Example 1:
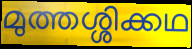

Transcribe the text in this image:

മുത്തശ്ശിക്കഥ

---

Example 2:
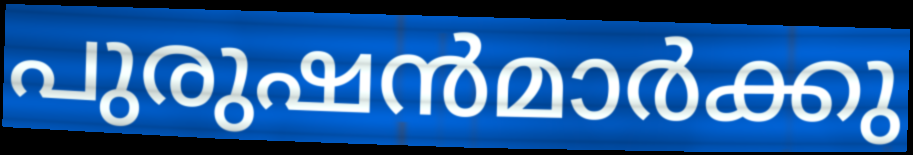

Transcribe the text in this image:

പുരുഷൻമാർക്കു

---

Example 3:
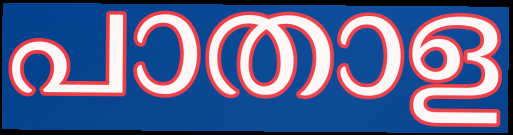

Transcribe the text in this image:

പാതാള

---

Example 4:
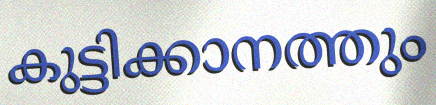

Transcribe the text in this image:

കുട്ടിക്കാനത്തും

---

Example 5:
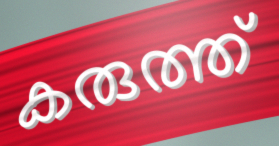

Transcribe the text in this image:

കരുത്ത്